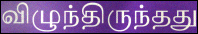
விழுந்திருந்தது